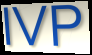
IVP